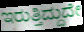
ಇರುತ್ತಿದ್ದುದೇ